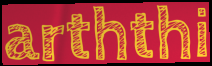
arththi